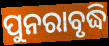
ପୁନରାବୃଦ୍ଧି